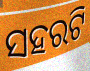
ସହରଟି